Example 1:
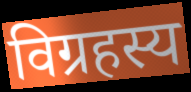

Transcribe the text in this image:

विग्रहस्य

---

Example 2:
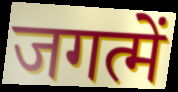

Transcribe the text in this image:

जगत्में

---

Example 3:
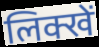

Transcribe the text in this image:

लिक्खें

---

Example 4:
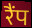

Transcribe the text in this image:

रैंप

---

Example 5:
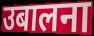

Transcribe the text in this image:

उबालना